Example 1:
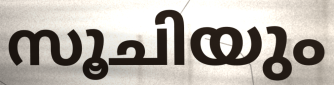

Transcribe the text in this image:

സൂചിയും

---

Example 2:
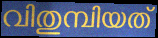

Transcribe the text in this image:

വിതുമ്പിയത്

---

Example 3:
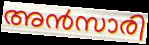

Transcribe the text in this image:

അൻസാരി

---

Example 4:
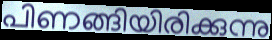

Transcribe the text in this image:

പിണങ്ങിയിരിക്കുന്നു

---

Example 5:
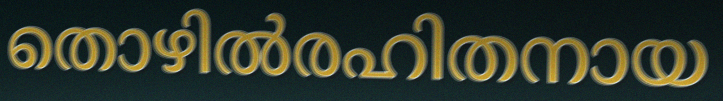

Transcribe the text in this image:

തൊഴിൽരഹിതനായ